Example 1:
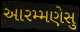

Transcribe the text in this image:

આરમ્મણેસુ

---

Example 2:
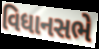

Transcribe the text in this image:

વિધાનસભે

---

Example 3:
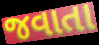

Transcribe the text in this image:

જવાતા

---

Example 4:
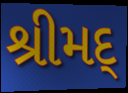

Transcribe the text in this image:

શ્રીમદ્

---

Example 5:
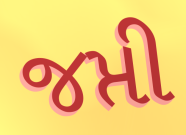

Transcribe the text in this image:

જપ્તી